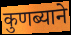
कुणब्याने